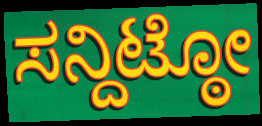
ಸನ್ದಿಟ್ಠೋ